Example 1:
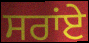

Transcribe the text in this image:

ਸਰਾਂਏ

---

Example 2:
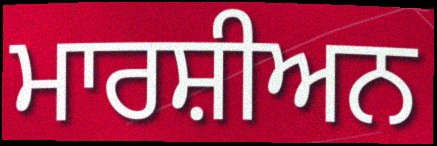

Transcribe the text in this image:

ਮਾਰਸ਼ੀਅਨ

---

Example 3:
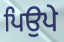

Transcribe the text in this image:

ਪਿਉਪੇ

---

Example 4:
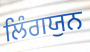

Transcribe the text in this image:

ਲਿੰਗਯੁਨ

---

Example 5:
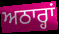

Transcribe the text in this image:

ਅਠਾਰ੍ਹਾਂ